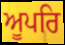
ਅੂਪਰਿ